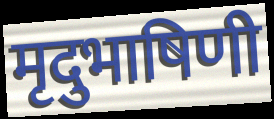
मृदुभाषिणी